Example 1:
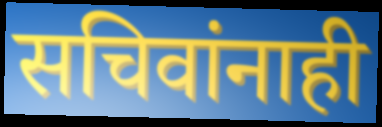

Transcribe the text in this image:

सचिवांनाही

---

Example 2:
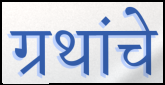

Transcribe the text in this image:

ग्रथांचे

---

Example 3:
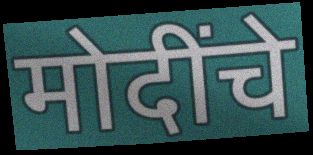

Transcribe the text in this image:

मोदींचे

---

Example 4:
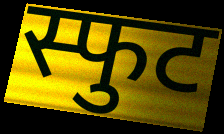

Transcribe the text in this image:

स्फुट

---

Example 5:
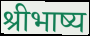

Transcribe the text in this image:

श्रीभाष्य